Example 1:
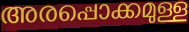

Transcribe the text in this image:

അരപ്പൊക്കമുള്ള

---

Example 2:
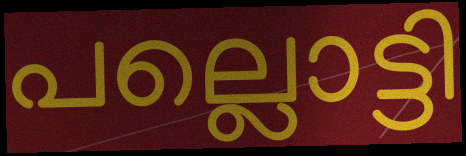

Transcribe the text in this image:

പല്ലൊട്ടി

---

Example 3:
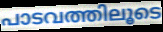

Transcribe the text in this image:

പാടവത്തിലൂടെ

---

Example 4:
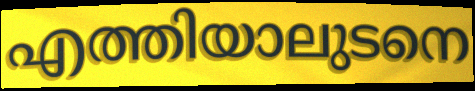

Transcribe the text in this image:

എത്തിയാലുടനെ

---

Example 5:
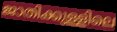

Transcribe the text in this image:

ജാതിക്കുള്ളിലെ